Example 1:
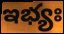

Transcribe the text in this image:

ఇభ్యః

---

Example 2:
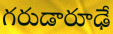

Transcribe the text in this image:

గరుడారూఢే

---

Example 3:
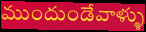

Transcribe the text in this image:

ముందుండేవాళ్ళు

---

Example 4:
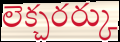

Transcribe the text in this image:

లెక్చరర్కు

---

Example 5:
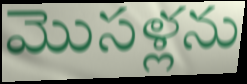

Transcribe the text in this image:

మొసళ్లను